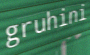
gruhini